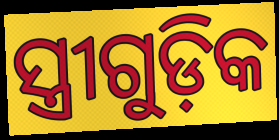
ସ୍ତ୍ରୀଗୁଡ଼ିକ